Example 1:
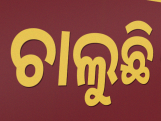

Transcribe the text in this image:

ଚାଲୁଛି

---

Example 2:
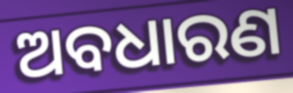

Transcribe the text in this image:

ଅବଧାରଣ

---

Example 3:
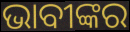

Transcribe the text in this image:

ଭାବୀଙ୍କର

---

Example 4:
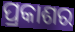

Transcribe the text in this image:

ପ୍ରକାଶର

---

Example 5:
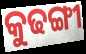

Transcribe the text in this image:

କୁଢଙ୍ଗୀ